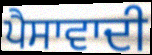
ਪੈਸਾਵਾਦੀ